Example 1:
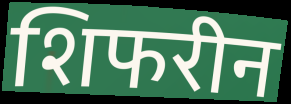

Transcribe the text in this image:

शिफरीन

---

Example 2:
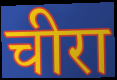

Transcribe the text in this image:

चीरा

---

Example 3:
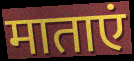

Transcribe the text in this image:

माताएं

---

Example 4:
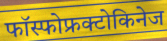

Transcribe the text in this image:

फॉस्फोफ्रक्टोकिनेज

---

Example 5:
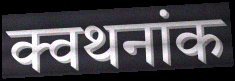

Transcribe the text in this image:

क्वथनांक